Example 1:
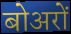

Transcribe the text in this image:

बोअरों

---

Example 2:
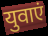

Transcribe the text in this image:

युवाएं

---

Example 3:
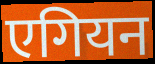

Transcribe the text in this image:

एगियन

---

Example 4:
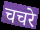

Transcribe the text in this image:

चचरे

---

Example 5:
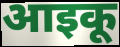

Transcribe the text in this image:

आइकू